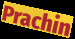
Prachin